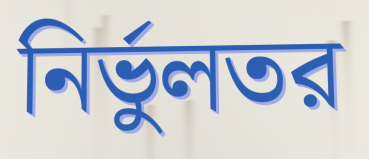
নির্ভুলতর